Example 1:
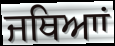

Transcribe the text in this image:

ਜਥਿਆਾਂ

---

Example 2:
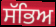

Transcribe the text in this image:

ਸੱਭਿਅ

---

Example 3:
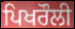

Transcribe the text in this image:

ਪਿਖਰੌਲੀ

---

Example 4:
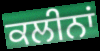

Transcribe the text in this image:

ਕਲੀਨਾਂ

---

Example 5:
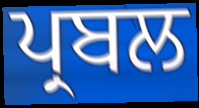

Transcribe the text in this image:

ਪ੍ਰਬਲ